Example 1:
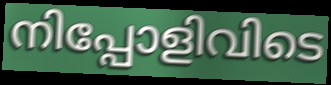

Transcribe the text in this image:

നിപ്പോളിവിടെ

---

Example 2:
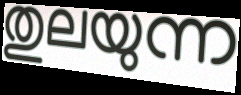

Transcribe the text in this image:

തുലയുന്ന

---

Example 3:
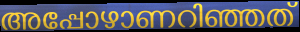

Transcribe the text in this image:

അപ്പോഴാണറിഞ്ഞത്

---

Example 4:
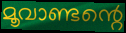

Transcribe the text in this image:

മൂവാണ്ടന്റെ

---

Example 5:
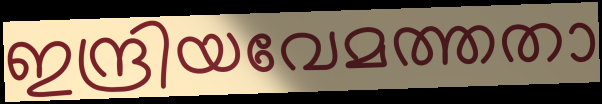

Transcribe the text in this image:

ഇന്ദ്രിയവേമത്തതാ